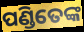
ପଣ୍ଡିତେଙ୍କ